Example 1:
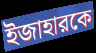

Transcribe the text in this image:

ইজাহারকে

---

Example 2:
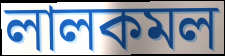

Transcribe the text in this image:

লালকমল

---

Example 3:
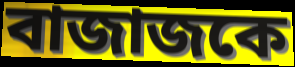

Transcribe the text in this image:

বাজাজকে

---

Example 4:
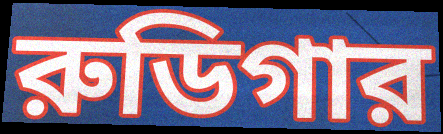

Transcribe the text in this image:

রুডিগার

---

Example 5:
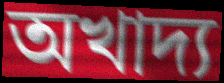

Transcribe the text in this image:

অখাদ্য